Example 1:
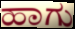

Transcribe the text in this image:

ಹಾಗು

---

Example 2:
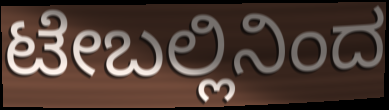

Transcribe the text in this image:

ಟೇಬಲ್ಲಿನಿಂದ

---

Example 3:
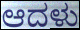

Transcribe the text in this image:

ಆದಳು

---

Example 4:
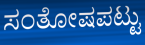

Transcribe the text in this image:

ಸಂತೋಷಪಟ್ಟು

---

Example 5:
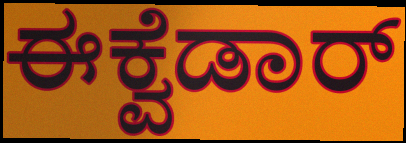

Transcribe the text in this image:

ಈಕ್ವೆಡಾರ್